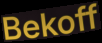
Bekoff